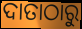
ଦାତାଠାରୁ